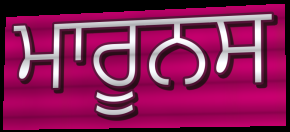
ਮਾਰੂਨਸ